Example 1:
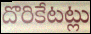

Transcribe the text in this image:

దొరికేటట్లు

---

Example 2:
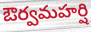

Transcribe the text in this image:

ఔర్వమహర్షి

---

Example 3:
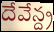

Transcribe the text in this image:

దేవేన్ద్ర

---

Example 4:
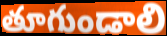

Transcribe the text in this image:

తూగుండాలి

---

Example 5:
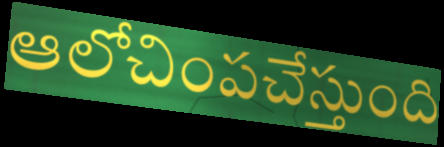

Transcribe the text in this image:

ఆలోచింపచేస్తుంది